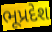
ભૂપ્રદેશ